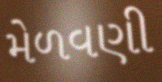
મેળવણી